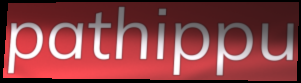
pathippu